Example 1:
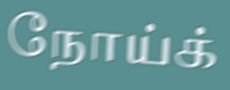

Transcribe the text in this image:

நோய்க்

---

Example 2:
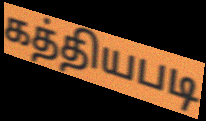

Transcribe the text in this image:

கத்தியபடி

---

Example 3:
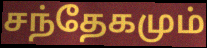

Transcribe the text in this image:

சந்தேகமும்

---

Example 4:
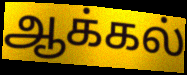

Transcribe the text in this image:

ஆக்கல்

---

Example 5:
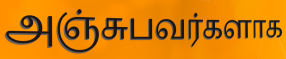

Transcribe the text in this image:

அஞ்சுபவர்களாக